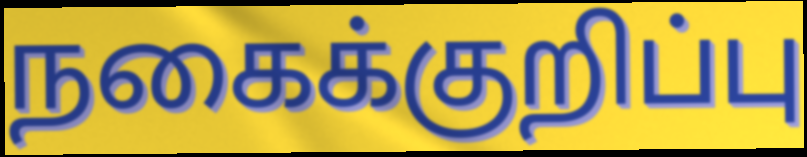
நகைக்குறிப்பு